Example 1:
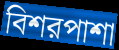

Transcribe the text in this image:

বিশরপাশা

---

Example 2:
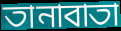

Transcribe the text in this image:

তানাবাতা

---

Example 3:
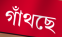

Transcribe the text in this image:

গাঁথছে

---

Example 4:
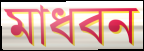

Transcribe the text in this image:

মাধবন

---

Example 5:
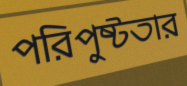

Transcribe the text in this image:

পরিপুষ্টতার